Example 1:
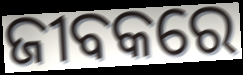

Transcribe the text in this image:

ଜୀବକରେ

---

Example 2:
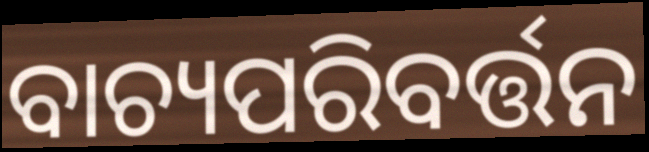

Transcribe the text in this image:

ବାଚ୍ୟପରିବର୍ତ୍ତନ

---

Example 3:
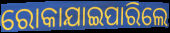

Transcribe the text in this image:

ରୋକାଯାଇପାରିଲେ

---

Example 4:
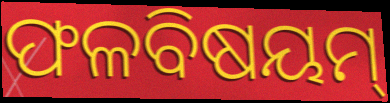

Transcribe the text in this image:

ଫଳବିଷୟମ୍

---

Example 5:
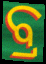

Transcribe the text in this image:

ବ୍ର